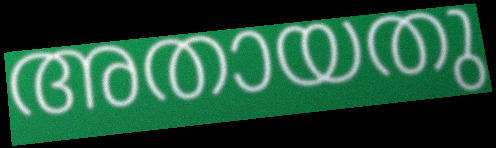
അതായതു